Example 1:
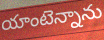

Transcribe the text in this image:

యాంటెన్నాను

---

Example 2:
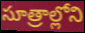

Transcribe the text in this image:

సూత్రాల్లోని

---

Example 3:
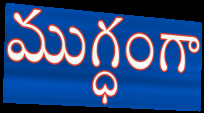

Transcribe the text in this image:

ముగ్ధంగా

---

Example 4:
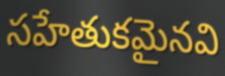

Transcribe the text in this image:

సహేతుకమైనవి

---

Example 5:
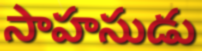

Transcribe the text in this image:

సాహసుడు